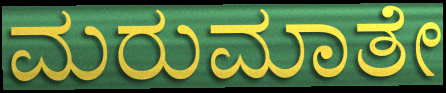
ಮರುಮಾತೇ